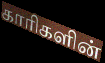
காரிகளின்